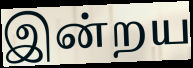
இன்றய